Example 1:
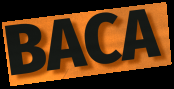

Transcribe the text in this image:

BACA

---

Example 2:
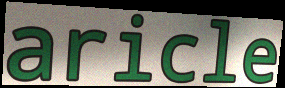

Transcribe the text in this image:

aricle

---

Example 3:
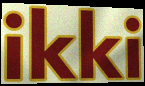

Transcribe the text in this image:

ikki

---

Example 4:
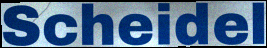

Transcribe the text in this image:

Scheidel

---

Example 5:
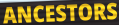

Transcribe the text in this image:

ANCESTORS